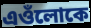
এওঁলোকে